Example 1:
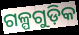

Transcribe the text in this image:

ଗଳ୍ପଗୁଡ଼ିକ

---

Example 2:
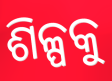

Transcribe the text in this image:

ଶିଳ୍ପକୁ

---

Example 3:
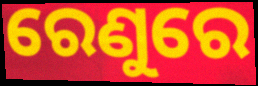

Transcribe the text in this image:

ରେଣୁରେ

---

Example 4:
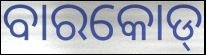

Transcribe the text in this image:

ବାରକୋଡ୍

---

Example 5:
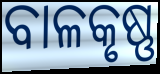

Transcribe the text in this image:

ବାଳକୃଷ୍ଣ